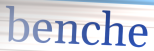
benche